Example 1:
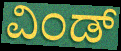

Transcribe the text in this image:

ವಿಂಡ್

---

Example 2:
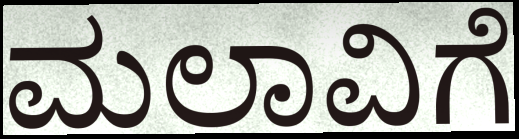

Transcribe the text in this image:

ಮಲಾವಿಗೆ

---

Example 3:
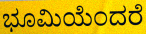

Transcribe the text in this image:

ಭೂಮಿಯೆಂದರೆ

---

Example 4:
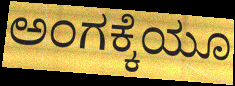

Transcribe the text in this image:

ಅಂಗಕ್ಕೆಯೂ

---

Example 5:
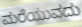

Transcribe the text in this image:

ಮರೆಯುವದು